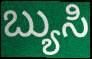
ಬ್ಯುಸಿ